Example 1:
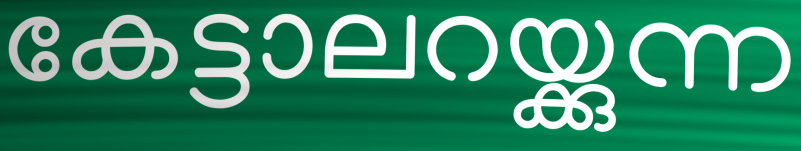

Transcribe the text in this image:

കേട്ടാലറയ്ക്കുന്ന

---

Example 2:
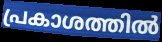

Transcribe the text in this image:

പ്രകാശത്തിൽ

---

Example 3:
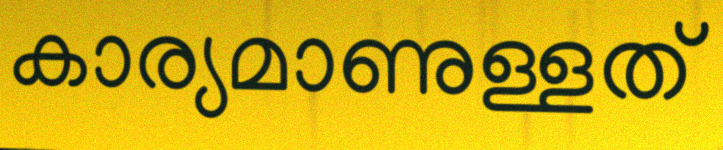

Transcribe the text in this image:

കാര്യമാണുള്ളത്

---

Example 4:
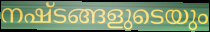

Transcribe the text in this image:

നഷ്ടങ്ങളുടെയും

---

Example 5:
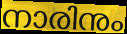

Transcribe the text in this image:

നാരിനും